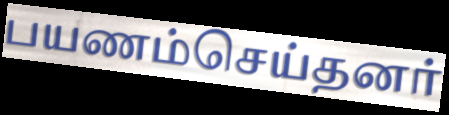
பயணம்செய்தனர்